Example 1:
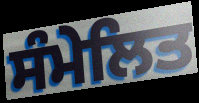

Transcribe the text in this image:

ਸੰਮੇਲਿਤ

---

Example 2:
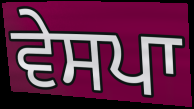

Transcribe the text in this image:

ਵੇਸਪਾ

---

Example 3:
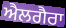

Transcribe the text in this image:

ਐਲਗੈਰਾ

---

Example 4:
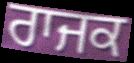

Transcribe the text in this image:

ਰਾਜਕ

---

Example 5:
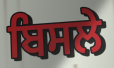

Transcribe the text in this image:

ਬਿਸਲੇ